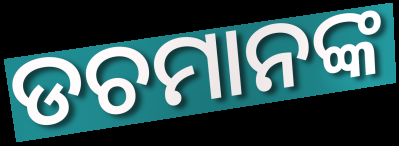
ଡଚମାନଙ୍କ